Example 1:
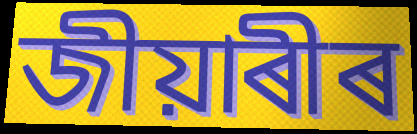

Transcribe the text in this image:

জীয়াৰীৰ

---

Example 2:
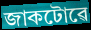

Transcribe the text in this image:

জাকটোৱে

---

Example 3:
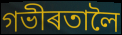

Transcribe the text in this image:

গভীৰতালৈ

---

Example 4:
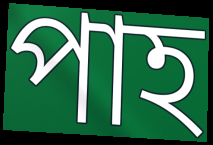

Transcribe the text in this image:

পাহ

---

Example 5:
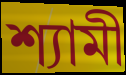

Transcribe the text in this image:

শ্যামী